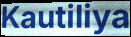
Kautiliya